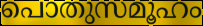
പൊതുസമൂഹം